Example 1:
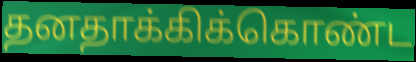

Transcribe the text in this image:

தனதாக்கிக்கொண்ட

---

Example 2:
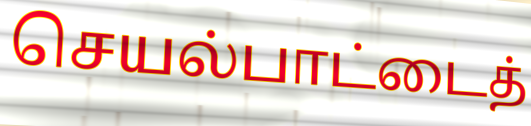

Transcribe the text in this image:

செயல்பாட்டைத்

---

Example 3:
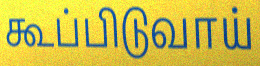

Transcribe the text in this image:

கூப்பிடுவாய்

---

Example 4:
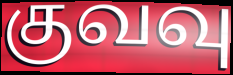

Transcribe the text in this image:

குவவு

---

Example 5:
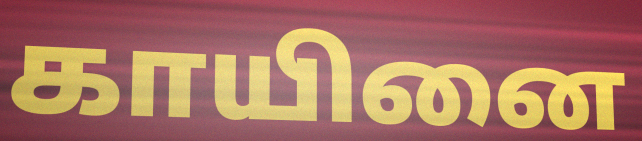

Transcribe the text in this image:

காயினை